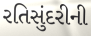
રતિસુંદરીની